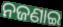
ନଜଣାଇ